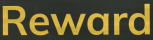
Reward